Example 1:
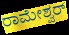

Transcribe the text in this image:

ರಾಮೇಶ್ವರ್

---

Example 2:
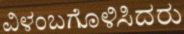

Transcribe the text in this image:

ವಿಳಂಬಗೊಳಿಸಿದರು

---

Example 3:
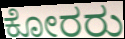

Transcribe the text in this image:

ಕೋರರು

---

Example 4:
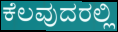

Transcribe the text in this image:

ಕೆಲವುದರಲ್ಲಿ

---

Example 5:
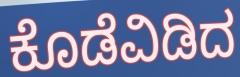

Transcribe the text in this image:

ಕೊಡೆವಿಡಿದ